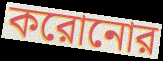
করোনোর